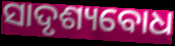
ସାଦୃଶ୍ୟବୋଧ